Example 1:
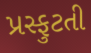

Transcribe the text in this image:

પ્રસ્ફુટતી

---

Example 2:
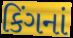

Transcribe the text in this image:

કિંગનાં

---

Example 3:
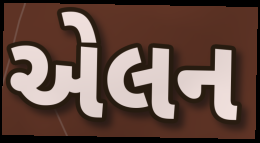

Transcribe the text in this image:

એલન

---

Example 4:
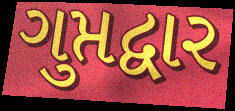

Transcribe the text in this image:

ગુપ્તદ્વાર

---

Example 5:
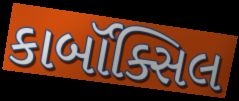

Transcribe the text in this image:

કાર્બૉક્સિલ